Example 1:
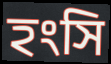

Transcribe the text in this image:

হংসি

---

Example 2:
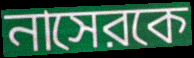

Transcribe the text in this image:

নাসেরকে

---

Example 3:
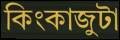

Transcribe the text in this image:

কিংকাজুটা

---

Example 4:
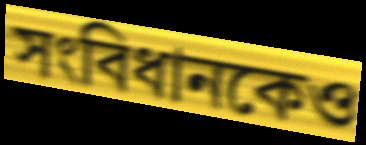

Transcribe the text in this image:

সংবিধানকেও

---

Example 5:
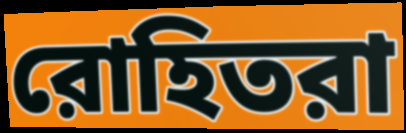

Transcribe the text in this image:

রোহিতরা